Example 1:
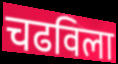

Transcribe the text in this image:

चढविला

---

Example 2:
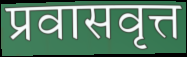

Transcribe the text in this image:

प्रवासवृत्त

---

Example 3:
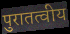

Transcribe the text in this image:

पुरातत्वीय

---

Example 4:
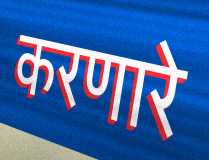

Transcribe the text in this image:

करणारे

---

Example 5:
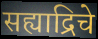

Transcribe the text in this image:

सह्याद्रिचे